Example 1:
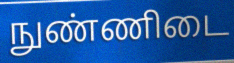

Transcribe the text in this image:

நுண்ணிடை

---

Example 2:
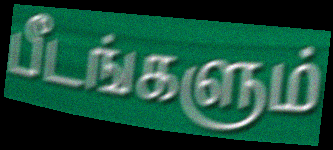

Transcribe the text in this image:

பீடங்களும்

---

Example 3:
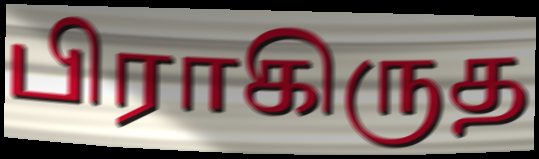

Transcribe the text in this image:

பிராகிருத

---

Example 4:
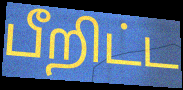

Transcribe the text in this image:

பீறிட்ட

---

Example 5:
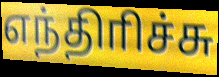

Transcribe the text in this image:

எந்திரிச்சு